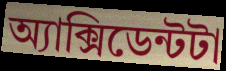
অ্যাক্সিডেন্টটা